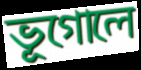
ভূগোলে